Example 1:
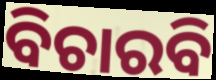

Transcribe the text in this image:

ବିଚାରବି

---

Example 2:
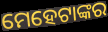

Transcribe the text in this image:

ମେହେଟାଙ୍କର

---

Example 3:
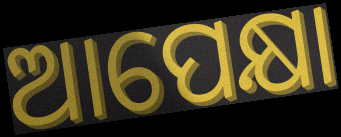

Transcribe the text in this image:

ଆପେକ୍ଷା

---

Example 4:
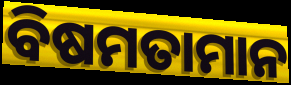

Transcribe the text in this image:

ବିଷମତାମାନ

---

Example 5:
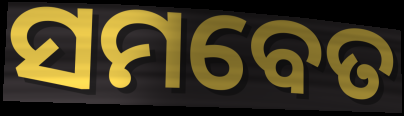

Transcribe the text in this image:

ସମବେତ